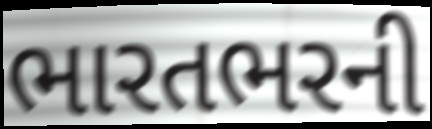
ભારતભરની